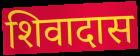
शिवादास